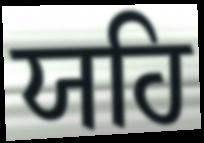
ਯਹਿ